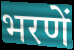
भरणें